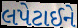
લપેટાઈને